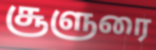
சூளுரை